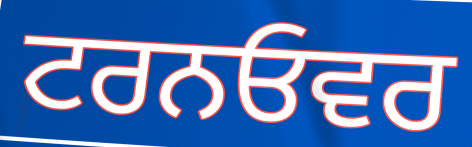
ਟਰਨਓਵਰ